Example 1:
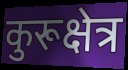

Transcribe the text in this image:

कुरूक्षेत्र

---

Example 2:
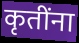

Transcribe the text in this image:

कृतींना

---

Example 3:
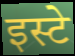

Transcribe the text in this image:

इस्टे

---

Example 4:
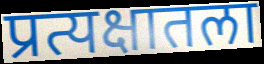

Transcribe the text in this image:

प्रत्यक्षातला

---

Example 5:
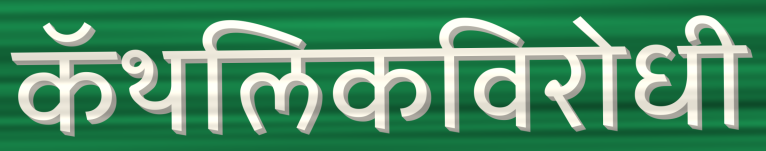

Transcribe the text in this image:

कॅथलिकविरोधी